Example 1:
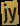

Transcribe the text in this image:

jy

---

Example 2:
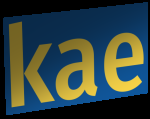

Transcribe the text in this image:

kae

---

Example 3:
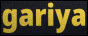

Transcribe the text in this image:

gariya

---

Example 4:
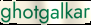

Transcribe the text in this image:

ghotgalkar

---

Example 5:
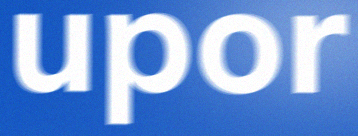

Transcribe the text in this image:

upor